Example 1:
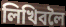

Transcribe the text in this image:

লিখিবলৈ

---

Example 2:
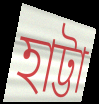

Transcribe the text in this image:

হাট্টা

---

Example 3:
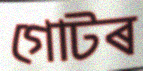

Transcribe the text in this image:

গোটৰ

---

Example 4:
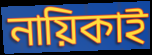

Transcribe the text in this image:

নায়িকাই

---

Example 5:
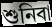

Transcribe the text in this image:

শুনিবা